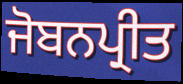
ਜੋਬਨਪ੍ਰੀਤ